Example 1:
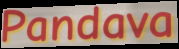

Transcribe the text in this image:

Pandava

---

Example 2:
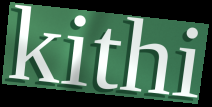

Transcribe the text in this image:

kithi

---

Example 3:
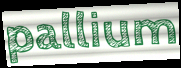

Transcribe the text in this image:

pallium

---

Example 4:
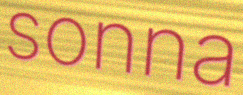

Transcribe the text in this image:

sonna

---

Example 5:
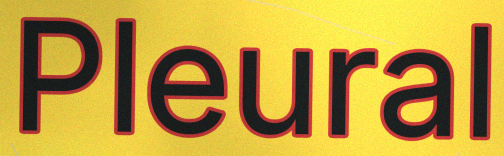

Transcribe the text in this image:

Pleural